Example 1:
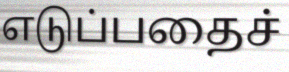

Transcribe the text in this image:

எடுப்பதைச்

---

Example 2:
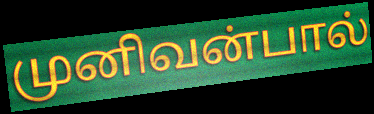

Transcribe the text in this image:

முனிவன்பால்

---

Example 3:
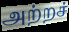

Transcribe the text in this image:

அற்றச்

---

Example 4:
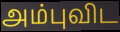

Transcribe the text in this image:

அம்புவிட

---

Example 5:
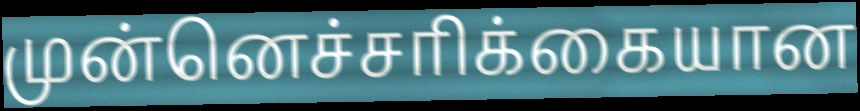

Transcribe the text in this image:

முன்னெச்சரிக்கையான